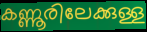
കണ്ണൂരിലേക്കുള്ള